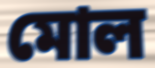
মোল